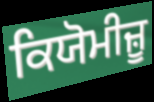
ਕਿਯੋਮੀਜ਼ੂ